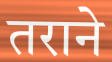
तराने